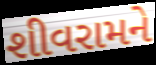
શીવરામને